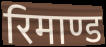
रिमाण्ड